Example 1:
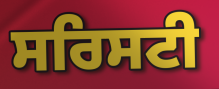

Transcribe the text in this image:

ਸਰਿਸਟੀ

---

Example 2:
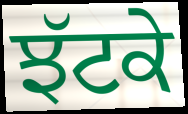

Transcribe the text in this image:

ਝੱਟਕੇ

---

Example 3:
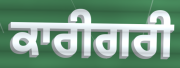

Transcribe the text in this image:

ਕਾਰੀਗਰੀ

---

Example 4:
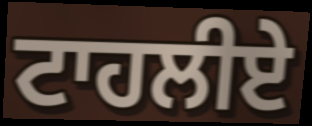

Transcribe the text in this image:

ਟਾਹਲੀਏ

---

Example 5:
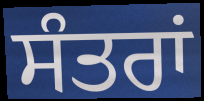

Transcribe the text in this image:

ਸੰਤਰਾਂ